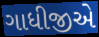
ગાધીજીએ